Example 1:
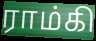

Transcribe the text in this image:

ராம்கி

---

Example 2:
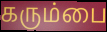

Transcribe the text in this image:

கரும்பை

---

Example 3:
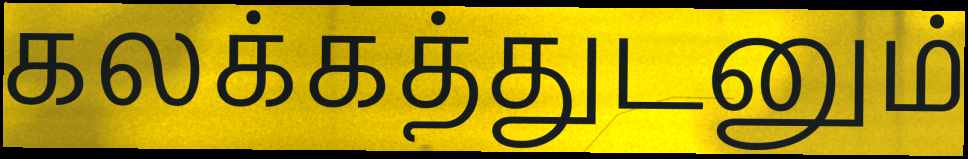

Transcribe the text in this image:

கலக்கத்துடனும்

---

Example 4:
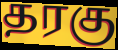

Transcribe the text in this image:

தரகு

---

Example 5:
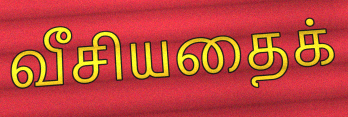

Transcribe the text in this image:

வீசியதைக்